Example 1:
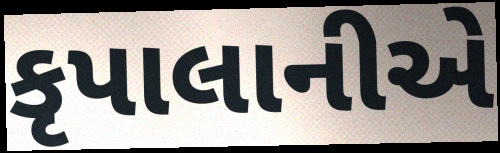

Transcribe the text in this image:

કૃપાલાનીએ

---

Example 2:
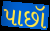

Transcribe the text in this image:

પાછૉ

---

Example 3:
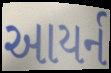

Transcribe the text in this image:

આયર્ન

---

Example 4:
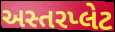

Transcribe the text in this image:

અસ્તરપ્લેટ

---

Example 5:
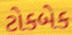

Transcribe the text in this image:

ટોકબેક